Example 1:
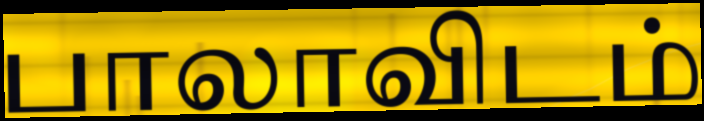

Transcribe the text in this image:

பாலாவிடம்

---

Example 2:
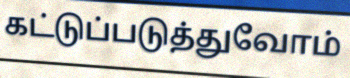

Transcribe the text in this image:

கட்டுப்படுத்துவோம்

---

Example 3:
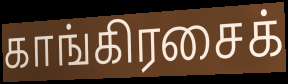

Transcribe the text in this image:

காங்கிரசைக்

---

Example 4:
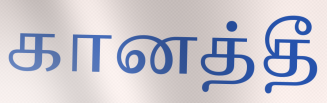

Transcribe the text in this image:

கானத்தீ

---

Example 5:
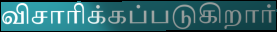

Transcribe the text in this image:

விசாரிக்கப்படுகிறார்